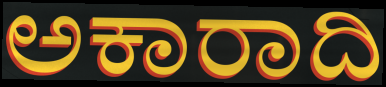
ಅಕಾರಾದಿ